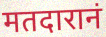
मतदारानं